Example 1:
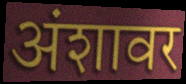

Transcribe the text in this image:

अंशावर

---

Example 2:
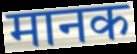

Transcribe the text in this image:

मानक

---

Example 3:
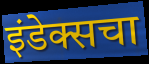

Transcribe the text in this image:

इंडेक्सचा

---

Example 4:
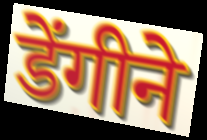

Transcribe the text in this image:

डेंगीने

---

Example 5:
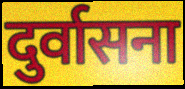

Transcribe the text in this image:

दुर्वासना